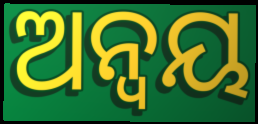
ଅନ୍ୱୟ